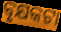
ବୃକ୍ଷକଟା